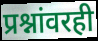
प्रश्नांवरही